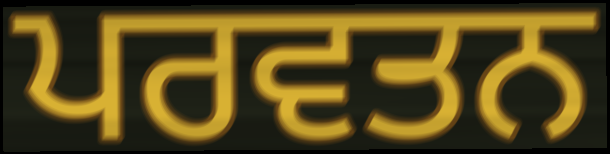
ਪਰਵਤਨ